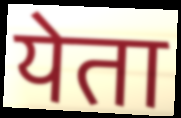
येता